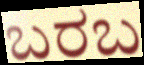
ಬರಬ